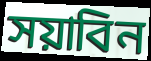
সয়াবিন